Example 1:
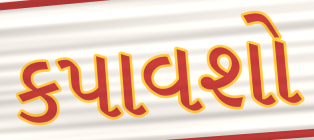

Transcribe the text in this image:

કપાવશો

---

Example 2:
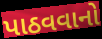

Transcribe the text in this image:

પાઠવવાનો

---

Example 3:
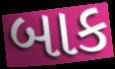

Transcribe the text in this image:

બાક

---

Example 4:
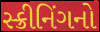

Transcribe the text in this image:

સ્ક્રીનિંગનો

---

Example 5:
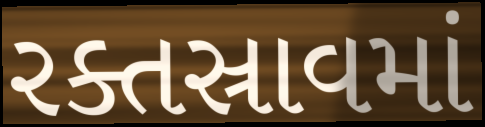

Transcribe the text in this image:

રક્તસ્રાવમાં